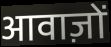
आवाज़ों